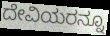
ದೇವಿಯರನ್ನೂ